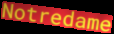
Notredame